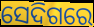
ସେଦିଗରେ